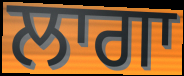
ਲਾਗਾ